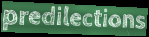
predilections